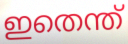
ഇതെന്ത്